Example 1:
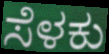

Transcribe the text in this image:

ಸೆಳಕು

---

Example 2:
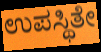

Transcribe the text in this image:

ಉಪಸ್ಥಿತೇ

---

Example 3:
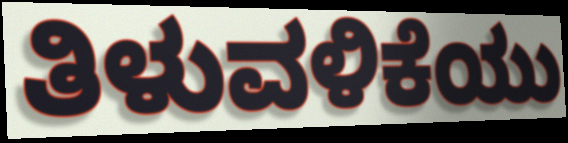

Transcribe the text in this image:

ತಿಳುವಳಿಕೆಯು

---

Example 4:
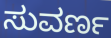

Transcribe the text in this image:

ಸುವರ್ಣ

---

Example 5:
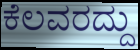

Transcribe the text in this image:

ಕೆಲವರದ್ದು